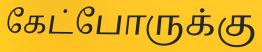
கேட்போருக்கு